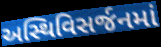
અસ્થિવિસર્જનમાં